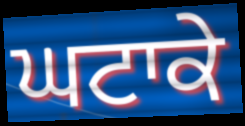
ਘਟਾਕੇ